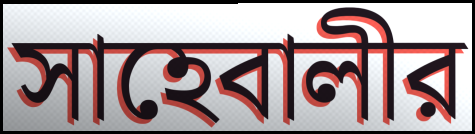
সাহেবালীর